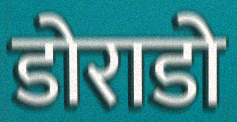
डोराडो